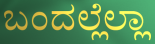
ಬಂದಲ್ಲೆಲ್ಲಾ